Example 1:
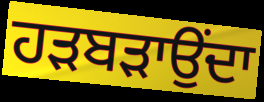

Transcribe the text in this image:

ਹੜਬੜਾਉਂਦਾ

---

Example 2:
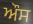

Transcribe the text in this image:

ਔਸ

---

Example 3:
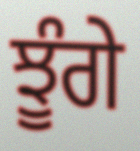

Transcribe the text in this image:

ਝੂੰਗੇ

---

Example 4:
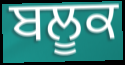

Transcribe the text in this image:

ਬਲੂਕ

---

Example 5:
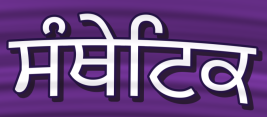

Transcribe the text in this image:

ਸੰਥੇਟਿਕ